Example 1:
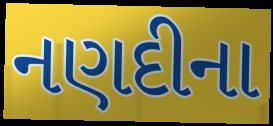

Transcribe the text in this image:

નણદીના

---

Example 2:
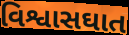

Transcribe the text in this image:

વિશ્વાસઘાત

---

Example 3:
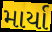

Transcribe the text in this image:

માર્યા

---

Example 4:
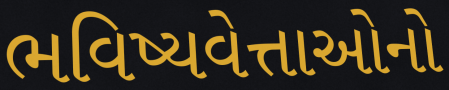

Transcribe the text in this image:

ભવિષ્યવેત્તાઓનો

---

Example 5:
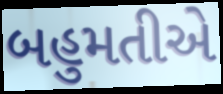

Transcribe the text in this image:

બહુમતીએ